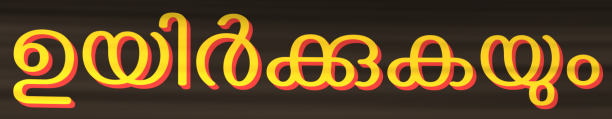
ഉയിർക്കുകയും